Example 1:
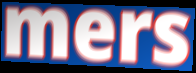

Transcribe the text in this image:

mers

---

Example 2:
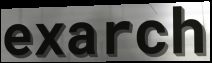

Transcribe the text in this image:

exarch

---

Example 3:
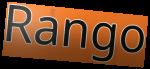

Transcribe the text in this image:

Rango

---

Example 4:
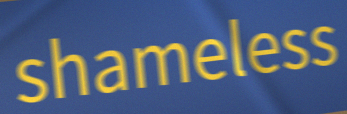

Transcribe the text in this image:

shameless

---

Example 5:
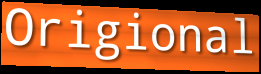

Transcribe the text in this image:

Origional